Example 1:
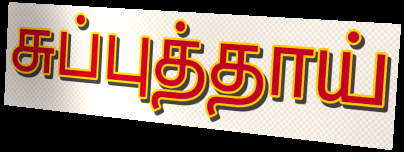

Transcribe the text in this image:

சுப்புத்தாய்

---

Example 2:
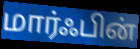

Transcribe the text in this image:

மார்ஃபின்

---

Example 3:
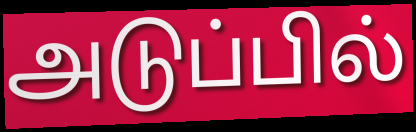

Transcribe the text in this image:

அடுப்பில்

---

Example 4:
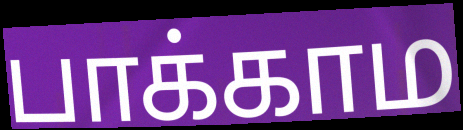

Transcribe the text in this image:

பாக்காம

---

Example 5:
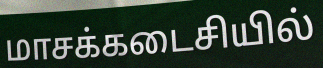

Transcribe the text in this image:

மாசக்கடைசியில்